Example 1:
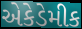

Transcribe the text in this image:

એકેડેમીક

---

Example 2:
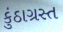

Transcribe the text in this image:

કુંઠાગ્રસ્ત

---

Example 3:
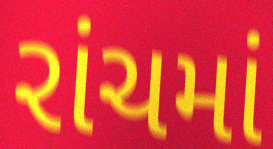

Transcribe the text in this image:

રાંચમાં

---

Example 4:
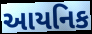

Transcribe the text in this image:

આયનિક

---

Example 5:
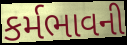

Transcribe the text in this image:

કર્મભાવની